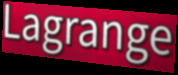
Lagrange